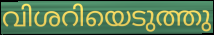
വിശറിയെടുത്തു